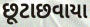
છૂટાછવાયા